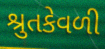
શ્રુતકેવળી